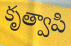
కృత్వాపి